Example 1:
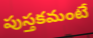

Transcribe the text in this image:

పుస్తకమంటే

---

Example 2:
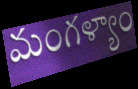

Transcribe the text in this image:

మంగళ్యాం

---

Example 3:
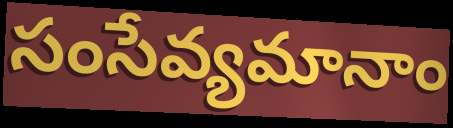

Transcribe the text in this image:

సంసేవ్యమానాం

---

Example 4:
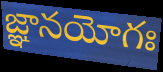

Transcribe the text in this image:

జ్ఞానయోగః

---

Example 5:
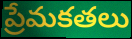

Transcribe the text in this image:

ప్రేమకతలు